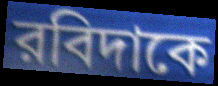
রবিদাকে